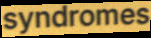
syndromes